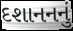
દશાનનનું